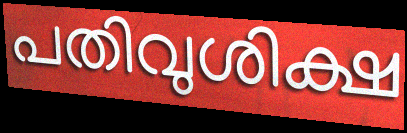
പതിവുശിക്ഷ